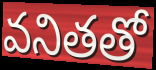
వనితతో